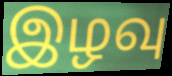
இழவு